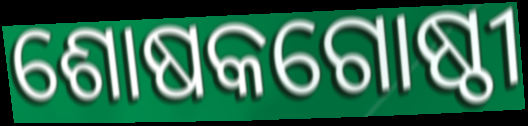
ଶୋଷକଗୋଷ୍ଠୀ